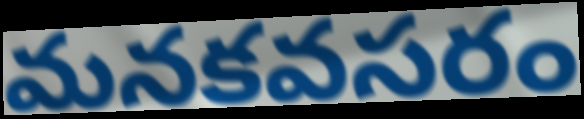
మనకవసరం